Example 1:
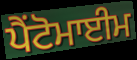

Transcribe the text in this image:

ਪੈਂਟੋਮਾਈਮ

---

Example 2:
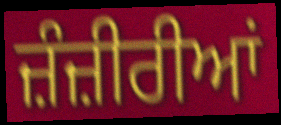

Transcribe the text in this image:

ਜ਼ੰਜ਼ੀਰੀਆਂ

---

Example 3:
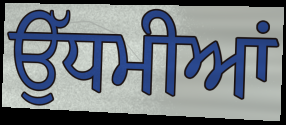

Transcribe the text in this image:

ਉੱਧਮੀਆਂ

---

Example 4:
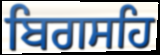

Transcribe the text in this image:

ਬਿਗਸਹਿ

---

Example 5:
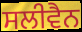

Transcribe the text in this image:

ਸਲੀਵੈਨ